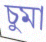
চুমা